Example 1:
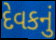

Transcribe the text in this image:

દેવકનું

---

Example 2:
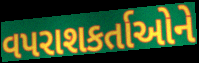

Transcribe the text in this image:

વપરાશકર્તાઓને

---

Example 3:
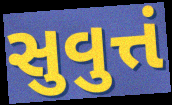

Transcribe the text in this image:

સુવુત્તં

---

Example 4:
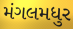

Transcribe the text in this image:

મંગલમધુર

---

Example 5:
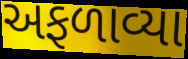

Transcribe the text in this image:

અફળાવ્યા